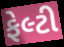
ફેલ્ટી